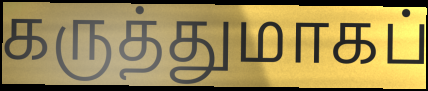
கருத்துமாகப்